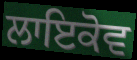
ਲਾਇਕੋਵ